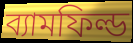
ব্যামফিল্ড